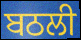
ਬਠਲੀ